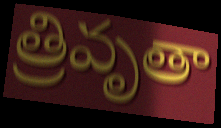
త్రివృతా